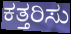
ಕತ್ತರಿಸು